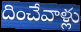
దించేవాళ్లు